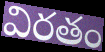
విరతం